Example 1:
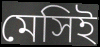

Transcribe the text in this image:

মেসিই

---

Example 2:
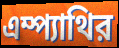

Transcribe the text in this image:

এম্প্যাথির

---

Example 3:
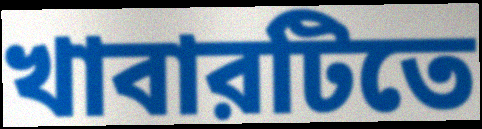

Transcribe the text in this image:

খাবারটিতে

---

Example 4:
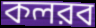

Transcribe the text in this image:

কলরব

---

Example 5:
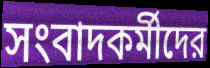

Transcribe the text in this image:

সংবাদকর্মীদের